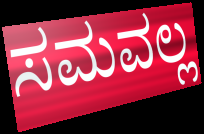
ಸಮವಲ್ಲ